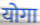
योगा